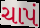
ચાપં